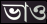
ভাও